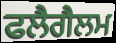
ਫਲੈਗੈਲਮ